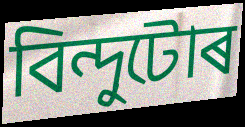
বিন্দুটোৰ